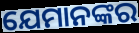
ଯେମାନଙ୍କର